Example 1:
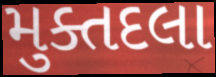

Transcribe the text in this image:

મુક્તદલા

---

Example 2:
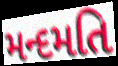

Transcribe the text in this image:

મન્દમતિ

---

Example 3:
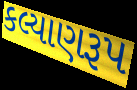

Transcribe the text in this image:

કલ્યાણરૂપ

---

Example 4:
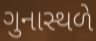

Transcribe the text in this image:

ગુનાસ્થળે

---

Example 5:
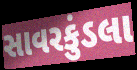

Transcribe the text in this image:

સાવરકુંડલા